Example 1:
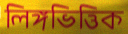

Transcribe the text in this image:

লিঙ্গভিত্তিক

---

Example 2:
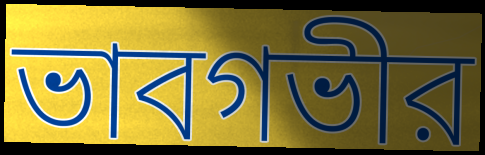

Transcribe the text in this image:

ভাবগভীর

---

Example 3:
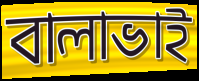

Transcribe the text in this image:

বালাভাই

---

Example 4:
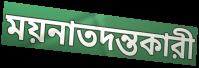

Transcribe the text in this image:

ময়নাতদন্তকারী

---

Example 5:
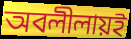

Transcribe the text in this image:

অবলীলায়ই